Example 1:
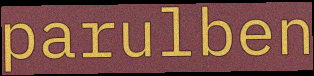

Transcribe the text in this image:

parulben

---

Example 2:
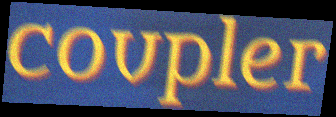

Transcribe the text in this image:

coupler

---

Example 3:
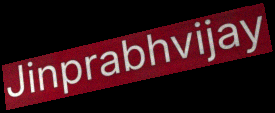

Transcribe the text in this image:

Jinprabhvijay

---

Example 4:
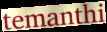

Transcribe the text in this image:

temanthi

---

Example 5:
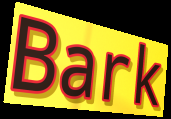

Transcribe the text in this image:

Bark